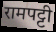
रामपट्टी